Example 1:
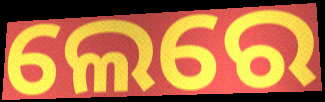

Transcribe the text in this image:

ଲେରେ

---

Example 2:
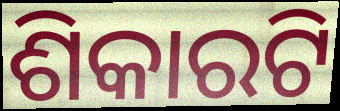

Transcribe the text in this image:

ଶିକାରଟି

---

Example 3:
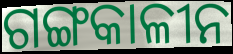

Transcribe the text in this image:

ଗଙ୍ଗକାଳୀନ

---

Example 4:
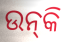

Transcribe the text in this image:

ଉନ୍‌କି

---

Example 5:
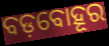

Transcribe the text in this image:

ବଡ଼ବୋହୂର